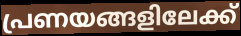
പ്രണയങ്ങളിലേക്ക്